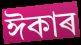
ঈকাৰ